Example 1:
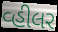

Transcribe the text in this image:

વ્હીલર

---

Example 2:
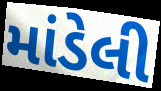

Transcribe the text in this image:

માંડેલી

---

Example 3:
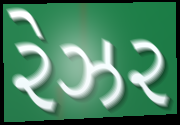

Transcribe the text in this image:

રેઝર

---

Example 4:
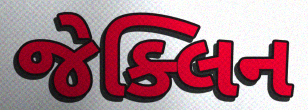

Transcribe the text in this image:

જેક્લિન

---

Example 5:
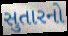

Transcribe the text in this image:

સુતારનો